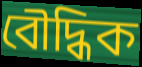
বৌদ্ধিক